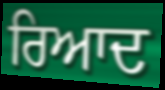
ਰਿਆਦ